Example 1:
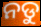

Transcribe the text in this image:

ନଡୁ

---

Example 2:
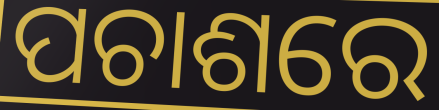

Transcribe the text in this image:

ପଚାଶରେ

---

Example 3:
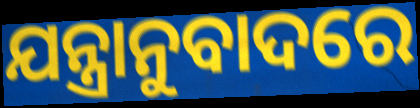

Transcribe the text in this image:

ଯନ୍ତ୍ରାନୁବାଦରେ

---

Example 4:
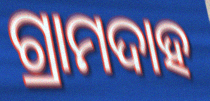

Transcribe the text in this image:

ଗ୍ରାମଦାହ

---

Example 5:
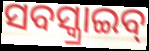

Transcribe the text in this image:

ସବସ୍କ୍ରାଇବ୍